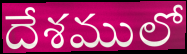
దేశములో